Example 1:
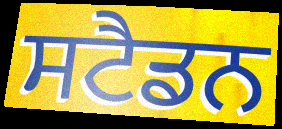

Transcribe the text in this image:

ਸਟੈਡਨ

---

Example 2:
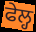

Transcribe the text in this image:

ਫੇਲ੍ਹ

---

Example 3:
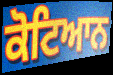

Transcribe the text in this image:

ਕੋਟਿਆਨ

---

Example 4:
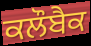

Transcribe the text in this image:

ਕਲੌਬੈਕ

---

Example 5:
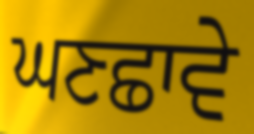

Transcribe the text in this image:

ਘਣਛਾਵੇ